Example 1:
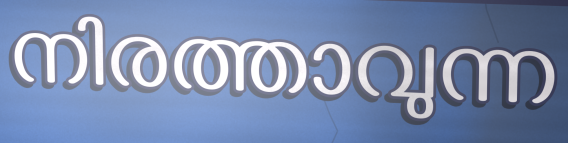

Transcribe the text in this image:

നിരത്താവുന്ന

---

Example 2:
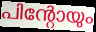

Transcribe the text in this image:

പിന്റോയും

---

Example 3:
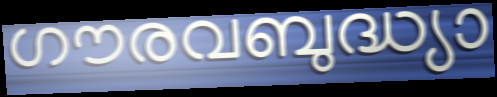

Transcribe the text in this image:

ഗൗരവബുദ്ധ്യാ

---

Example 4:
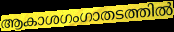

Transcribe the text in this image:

ആകാശഗംഗാതടത്തിൽ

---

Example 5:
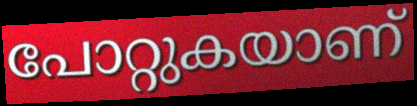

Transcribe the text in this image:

പോറ്റുകയാണ്